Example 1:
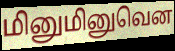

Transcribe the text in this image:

மினுமினுவென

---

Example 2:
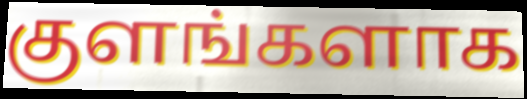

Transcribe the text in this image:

குளங்களாக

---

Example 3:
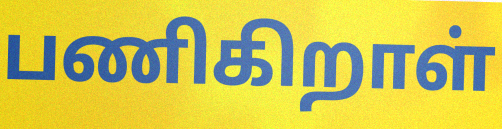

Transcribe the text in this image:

பணிகிறாள்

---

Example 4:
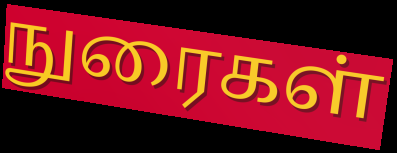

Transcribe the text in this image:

நுரைகள்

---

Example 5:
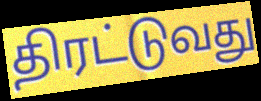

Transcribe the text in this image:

திரட்டுவது